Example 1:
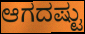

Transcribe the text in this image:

ಆಗದಷ್ಟು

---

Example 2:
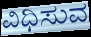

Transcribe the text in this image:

ವಿಧಿಸುವ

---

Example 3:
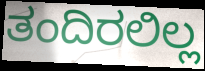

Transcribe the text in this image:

ತಂದಿರಲಿಲ್ಲ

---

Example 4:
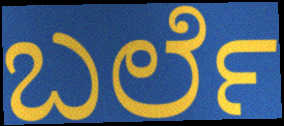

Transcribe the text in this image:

ಬರ್ಲೆ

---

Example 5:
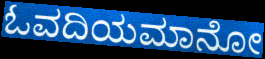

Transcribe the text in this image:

ಓವದಿಯಮಾನೋ